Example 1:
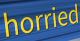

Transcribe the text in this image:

horried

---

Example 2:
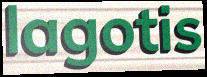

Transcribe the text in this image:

lagotis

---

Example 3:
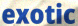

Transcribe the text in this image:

exotic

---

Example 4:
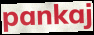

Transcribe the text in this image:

pankaj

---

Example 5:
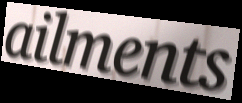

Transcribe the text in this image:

ailments